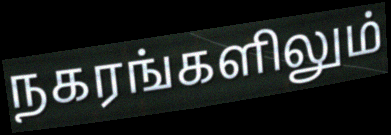
நகரங்களிலும்